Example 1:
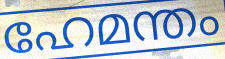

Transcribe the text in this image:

ഹേമന്തം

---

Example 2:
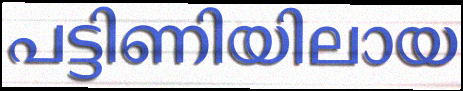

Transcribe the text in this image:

പട്ടിണിയിലായ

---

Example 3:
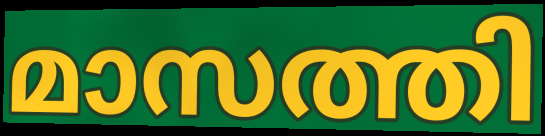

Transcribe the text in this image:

മാസത്തി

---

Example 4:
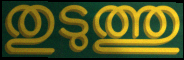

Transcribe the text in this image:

തുടുത്തു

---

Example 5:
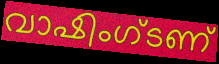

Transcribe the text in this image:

വാഷിംഗ്ടണ്